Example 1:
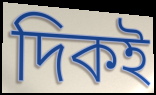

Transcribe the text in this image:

দিকই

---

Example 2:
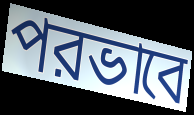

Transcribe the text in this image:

পরভাবে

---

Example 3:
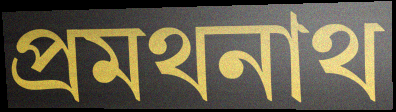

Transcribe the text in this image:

প্রমথনাথ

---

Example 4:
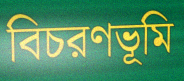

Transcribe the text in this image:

বিচরণভূমি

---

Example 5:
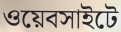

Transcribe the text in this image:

ওয়েবসাইটে